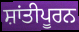
ਸ਼ਾਂਤੀਪੂਰਨ